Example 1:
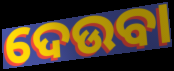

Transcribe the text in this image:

ଦେଉବା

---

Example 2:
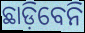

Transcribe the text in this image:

ଛାଡ଼ିବେନି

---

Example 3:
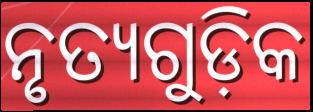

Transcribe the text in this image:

ନୃତ୍ୟଗୁଡ଼ିକ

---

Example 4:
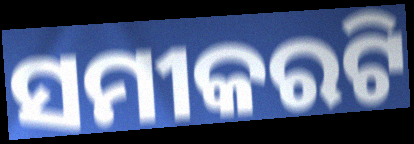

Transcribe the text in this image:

ସମୀକରଟି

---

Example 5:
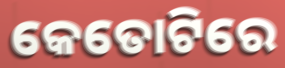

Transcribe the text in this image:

କେତୋଟିରେ